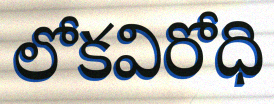
లోకవిరోధి